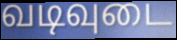
வடிவுடை